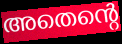
അതെന്റെ